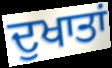
ਦੁਖਾਤਾਂ